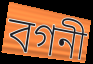
বগনী